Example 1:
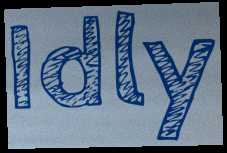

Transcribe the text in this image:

Idly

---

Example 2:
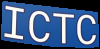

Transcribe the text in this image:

ICTC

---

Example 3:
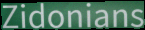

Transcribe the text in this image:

Zidonians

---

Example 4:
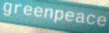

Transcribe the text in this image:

greenpeace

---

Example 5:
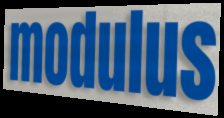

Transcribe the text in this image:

modulus